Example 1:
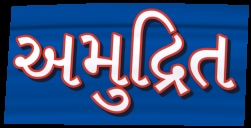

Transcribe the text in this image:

અમુદ્રિત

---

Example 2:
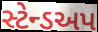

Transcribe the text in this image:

સ્ટેન્ડઅપ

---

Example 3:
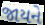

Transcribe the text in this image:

જાયને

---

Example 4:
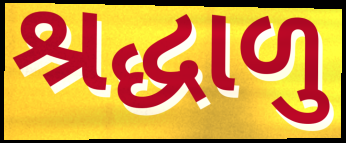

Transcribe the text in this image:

શ્રદ્ધાળુ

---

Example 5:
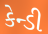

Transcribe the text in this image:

કેન્ડી